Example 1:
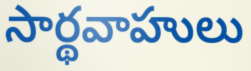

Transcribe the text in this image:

సార్థవాహులు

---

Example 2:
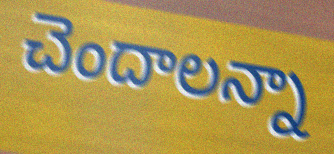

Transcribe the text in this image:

చెందాలన్నా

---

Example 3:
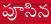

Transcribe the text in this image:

పూసిన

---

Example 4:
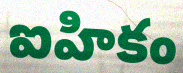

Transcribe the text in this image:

ఐహికం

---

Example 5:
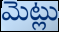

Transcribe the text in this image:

మెట్లు